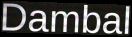
Dambal